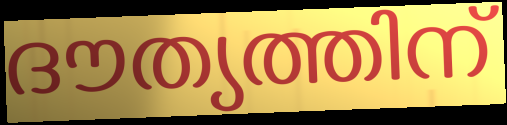
ദൗത്യത്തിന്